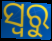
ସ୍ୱରୁ